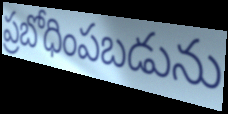
ప్రబోధింపబడును